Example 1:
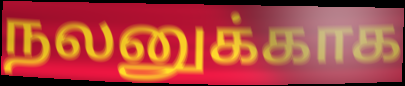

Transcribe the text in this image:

நலனுக்காக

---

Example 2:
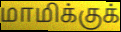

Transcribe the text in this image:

மாமிக்குக்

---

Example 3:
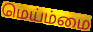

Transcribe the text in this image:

மெய்ம்மை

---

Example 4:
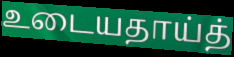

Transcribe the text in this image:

உடையதாய்த்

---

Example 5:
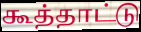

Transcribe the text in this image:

கூத்தாட்டு